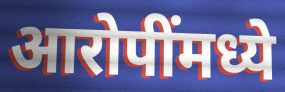
आरोपींमध्ये